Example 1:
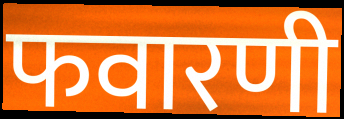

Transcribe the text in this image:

फवारणी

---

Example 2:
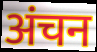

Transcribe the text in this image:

अंचन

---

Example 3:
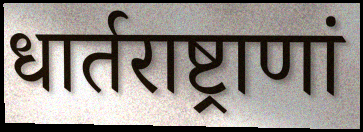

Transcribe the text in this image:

धार्तराष्ट्राणां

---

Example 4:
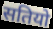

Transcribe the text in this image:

सतियो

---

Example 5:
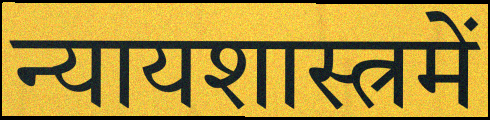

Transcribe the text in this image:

न्यायशास्त्रमें